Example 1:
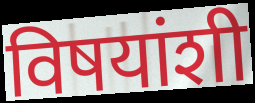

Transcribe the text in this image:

विषयांशी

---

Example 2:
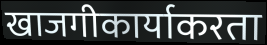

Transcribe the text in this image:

खाजगीकार्याकरता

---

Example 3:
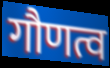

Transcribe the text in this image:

गौणत्व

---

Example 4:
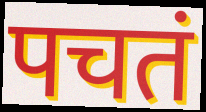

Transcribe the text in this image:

पचतं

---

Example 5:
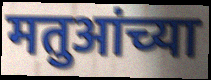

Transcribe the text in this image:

मतुआंच्या